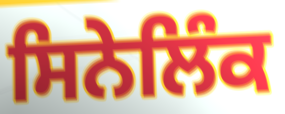
ਸਿਨੇਲਿੰਕ